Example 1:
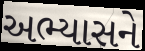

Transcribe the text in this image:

અભ્યાસને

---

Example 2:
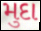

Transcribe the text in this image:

મુદા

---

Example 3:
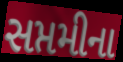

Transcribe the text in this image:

સપ્તમીના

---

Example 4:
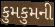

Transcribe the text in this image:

કુમકુમની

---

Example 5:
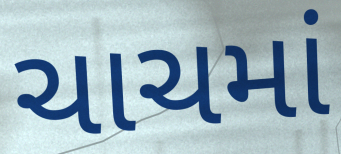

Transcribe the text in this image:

ચાચમાં